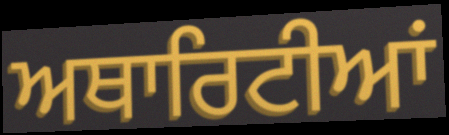
ਅਥਾਰਿਟੀਆਂ